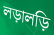
লড়ালড়ি